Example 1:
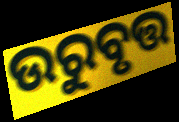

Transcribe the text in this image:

ଉରୁବୃତ୍ତ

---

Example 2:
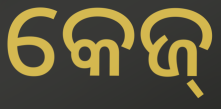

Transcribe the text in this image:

କେଜ୍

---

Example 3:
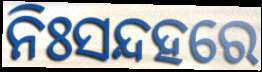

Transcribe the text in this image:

ନିଃସନ୍ଦହରେ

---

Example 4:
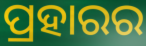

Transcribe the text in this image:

ପ୍ରହାରର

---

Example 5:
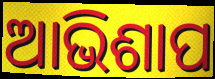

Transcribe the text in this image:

ଆଭିଶାପ